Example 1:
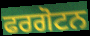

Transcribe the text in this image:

ਫਰਗੋਟਨ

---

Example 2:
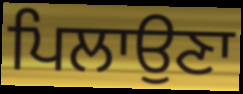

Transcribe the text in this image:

ਪਿਲਾਉਣਾ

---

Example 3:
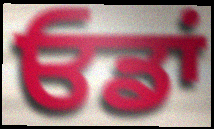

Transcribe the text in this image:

ਓਡਾਂ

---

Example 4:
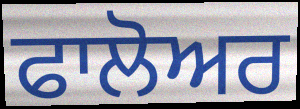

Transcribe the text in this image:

ਫਾਲੋਅਰ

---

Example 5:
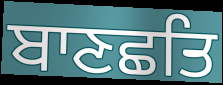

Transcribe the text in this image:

ਬਾਣਛਤਿ